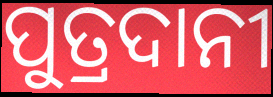
ପୁତ୍ରଦାନୀ